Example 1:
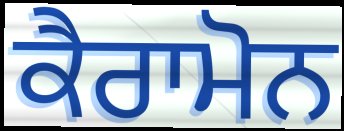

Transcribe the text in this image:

ਕੈਰਾਮੋਨ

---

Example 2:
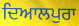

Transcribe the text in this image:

ਦਿਆਲਪੁਰਾ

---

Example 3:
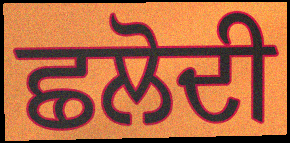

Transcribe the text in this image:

ਛਲੋਦੀ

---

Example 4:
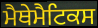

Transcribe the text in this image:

ਮੈਥੇਮੈਟਿਕਸ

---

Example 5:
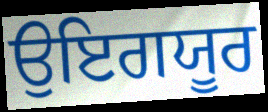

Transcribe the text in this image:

ਉਇਗਯੂਰ